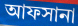
আফসানা